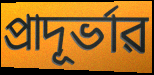
প্ৰাদূৰ্ভাৱ